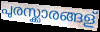
പുരസ്ക്കാരങ്ങള്